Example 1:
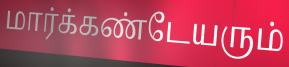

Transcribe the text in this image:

மார்க்கண்டேயரும்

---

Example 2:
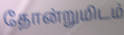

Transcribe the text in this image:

தோன்றுமிடம்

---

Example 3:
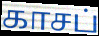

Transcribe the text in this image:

காசப்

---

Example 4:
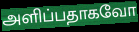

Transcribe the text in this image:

அளிப்பதாகவோ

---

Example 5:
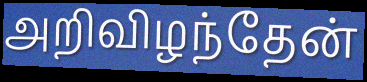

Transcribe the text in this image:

அறிவிழந்தேன்